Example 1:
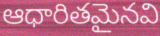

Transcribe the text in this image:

ఆధారితమైనవి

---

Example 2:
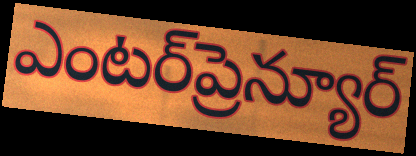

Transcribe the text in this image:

ఎంటర్‌ప్రెన్యూర్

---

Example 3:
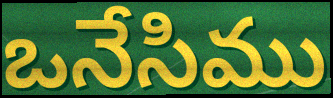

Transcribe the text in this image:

ఒనేసిము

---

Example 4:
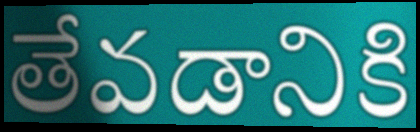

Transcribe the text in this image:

తేవడానికి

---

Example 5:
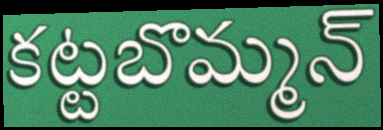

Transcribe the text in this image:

కట్టబొమ్మన్